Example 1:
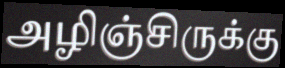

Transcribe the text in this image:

அழிஞ்சிருக்கு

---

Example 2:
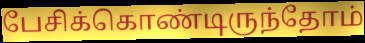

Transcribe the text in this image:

பேசிக்கொண்டிருந்தோம்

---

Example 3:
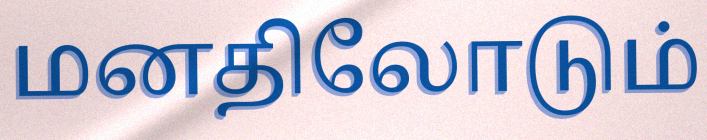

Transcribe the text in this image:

மனதிலோடும்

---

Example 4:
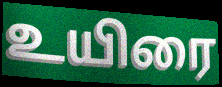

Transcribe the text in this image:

உயிரை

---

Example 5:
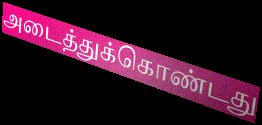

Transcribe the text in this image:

அடைத்துக்கொண்டது